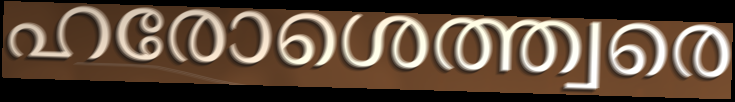
ഹരോശെത്ത്വരെ